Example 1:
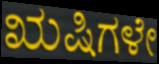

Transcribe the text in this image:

ಋಷಿಗಳೇ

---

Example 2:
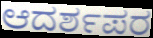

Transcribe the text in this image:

ಆದರ್ಶಪರ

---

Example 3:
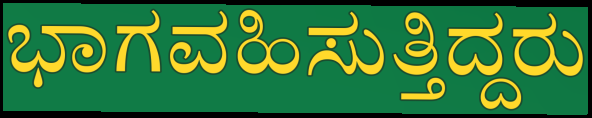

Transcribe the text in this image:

ಭಾಗವಹಿಸುತ್ತಿದ್ದರು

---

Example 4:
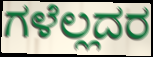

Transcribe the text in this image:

ಗಳೆಲ್ಲದರ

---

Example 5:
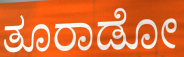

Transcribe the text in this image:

ತೂರಾಡೋ